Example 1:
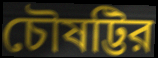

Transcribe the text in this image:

চৌষট্টির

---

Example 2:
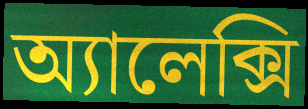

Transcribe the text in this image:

অ্যালেক্সি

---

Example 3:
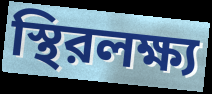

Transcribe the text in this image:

স্থিরলক্ষ্য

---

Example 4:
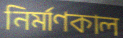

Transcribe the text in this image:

নির্মাণকাল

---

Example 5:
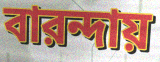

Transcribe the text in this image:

বারন্দায়